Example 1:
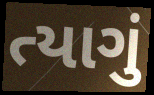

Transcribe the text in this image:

ત્યાગું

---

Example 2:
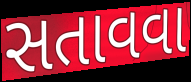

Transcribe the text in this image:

સતાવવા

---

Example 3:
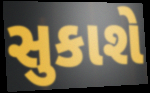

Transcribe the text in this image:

સુકાશે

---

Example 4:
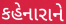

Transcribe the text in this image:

કહેનારાને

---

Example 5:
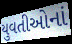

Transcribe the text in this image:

યુવતીઓનાં